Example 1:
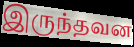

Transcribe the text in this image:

இருந்தவன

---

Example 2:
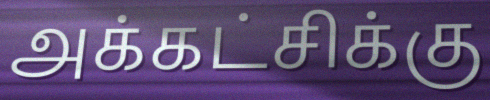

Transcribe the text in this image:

அக்கட்சிக்கு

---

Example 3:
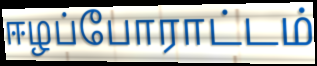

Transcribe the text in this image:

ஈழப்போராட்டம்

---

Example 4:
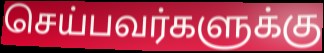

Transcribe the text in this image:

செய்பவர்களுக்கு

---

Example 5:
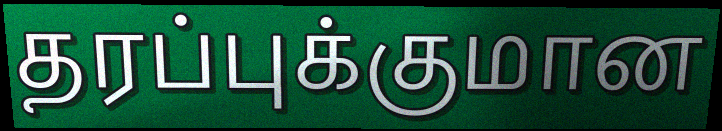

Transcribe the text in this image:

தரப்புக்குமான